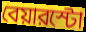
বেয়ারস্টো